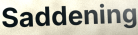
Saddening